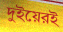
দুইয়েরই